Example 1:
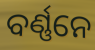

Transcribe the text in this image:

ବର୍ଣ୍ଣନେ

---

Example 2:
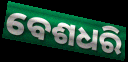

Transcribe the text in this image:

ବେଶଧରି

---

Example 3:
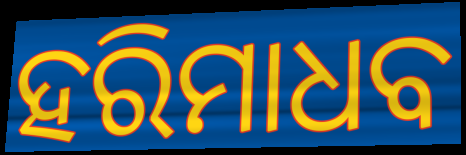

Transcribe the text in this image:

ହରିମାଧବ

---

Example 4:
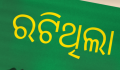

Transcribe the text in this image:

ରଟିଥିଲା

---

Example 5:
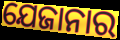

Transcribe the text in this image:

ଯେଜାନାର